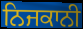
ਨਿਜਕਾਨੀ